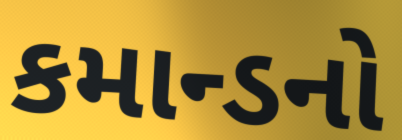
કમાન્ડનો